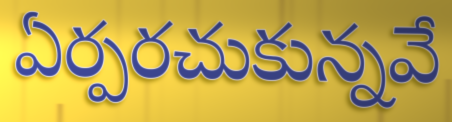
ఏర్పరచుకున్నవే